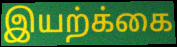
இயற்க்கை